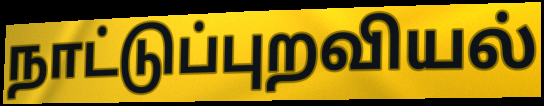
நாட்டுப்புறவியல்